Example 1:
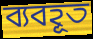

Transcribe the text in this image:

ব্যবহূত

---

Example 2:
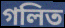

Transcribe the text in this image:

গলিত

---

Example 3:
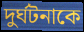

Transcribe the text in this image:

দুর্ঘটনাকে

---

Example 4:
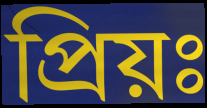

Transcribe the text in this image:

প্রিয়ঃ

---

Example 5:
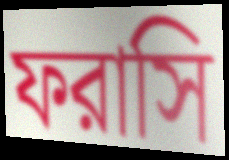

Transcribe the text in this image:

ফরাসি